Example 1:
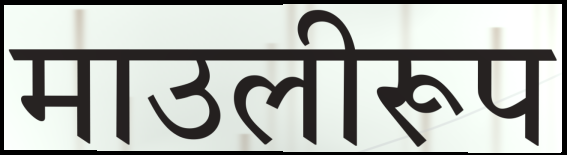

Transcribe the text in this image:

माउलीरूप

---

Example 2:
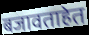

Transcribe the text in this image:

बजावताहेत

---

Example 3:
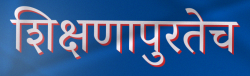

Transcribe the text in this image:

शिक्षणापुरतेच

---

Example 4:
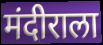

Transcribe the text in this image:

मंदीराला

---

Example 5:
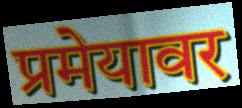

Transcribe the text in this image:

प्रमेयावर